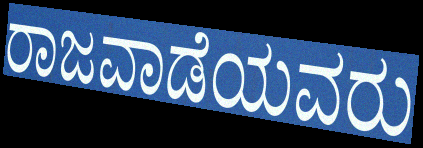
ರಾಜವಾಡೆಯವರು